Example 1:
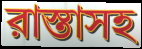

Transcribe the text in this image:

রাস্তাসহ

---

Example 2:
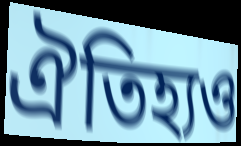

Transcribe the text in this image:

ঐতিহ্যও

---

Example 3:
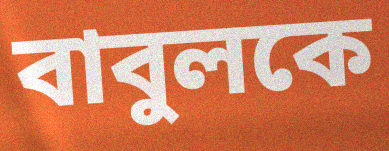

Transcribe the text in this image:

বাবুলকে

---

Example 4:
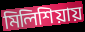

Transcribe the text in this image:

মিলিশিয়ায়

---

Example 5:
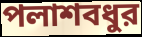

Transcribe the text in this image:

পলাশবধুর